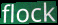
flock